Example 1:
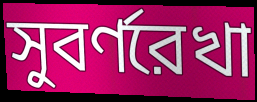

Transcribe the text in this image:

সুবর্ণরেখা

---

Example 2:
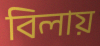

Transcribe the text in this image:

বিলায়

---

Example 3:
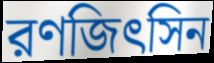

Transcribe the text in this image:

রণজিৎসিন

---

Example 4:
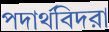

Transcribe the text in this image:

পদার্থবিদরা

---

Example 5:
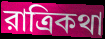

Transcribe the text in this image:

রাত্রিকথা